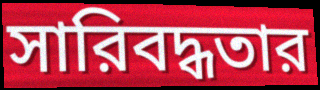
সারিবদ্ধতার